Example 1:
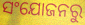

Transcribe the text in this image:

ସଂଯୋଜନରୁ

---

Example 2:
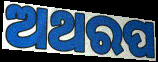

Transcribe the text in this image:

ଅଥରପ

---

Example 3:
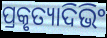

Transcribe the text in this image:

ପ୍ରକୃତ୍ୟାଦିଭିଂ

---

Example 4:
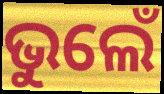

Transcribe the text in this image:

ଭୁଲେଁ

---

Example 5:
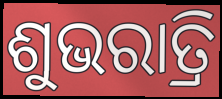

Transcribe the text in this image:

ଶୁଭରାତ୍ରି